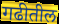
गढीतील